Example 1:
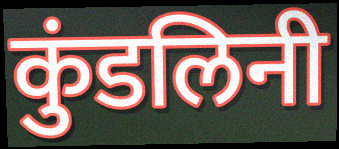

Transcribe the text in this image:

कुंडलिनी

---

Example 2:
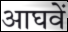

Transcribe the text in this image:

आघवें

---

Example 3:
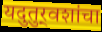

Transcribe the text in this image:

यदुतुर्वशांचा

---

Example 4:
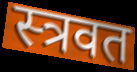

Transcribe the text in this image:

स्त्रवत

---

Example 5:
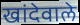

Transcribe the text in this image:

खांदेवाले